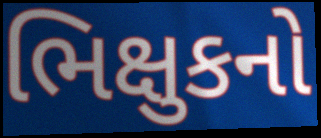
ભિક્ષુકનો